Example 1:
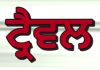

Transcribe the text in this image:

ਟ੍ਰੈਵਲ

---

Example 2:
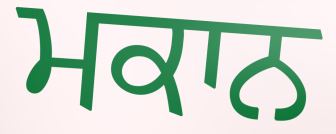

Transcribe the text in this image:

ਮਕਾਨ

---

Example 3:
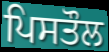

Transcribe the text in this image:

ਪਿਸਤੌਲ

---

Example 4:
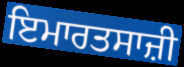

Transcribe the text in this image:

ਇਮਾਰਤਸਾਜ਼ੀ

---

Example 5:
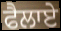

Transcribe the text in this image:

ਫੈਲਾਏ